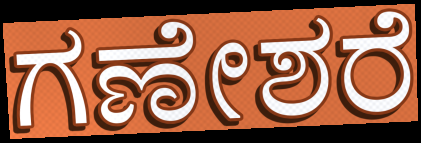
ಗಣೇಶರೆ